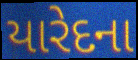
યારેદના